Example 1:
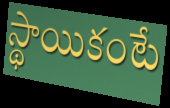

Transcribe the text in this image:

స్థాయికంటే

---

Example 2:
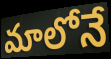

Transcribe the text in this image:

మాలోనే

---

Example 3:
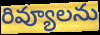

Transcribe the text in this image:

రివ్యూలను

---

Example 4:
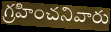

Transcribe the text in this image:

గ్రహించనివారు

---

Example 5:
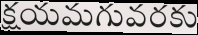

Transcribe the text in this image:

క్షయమగువరకు